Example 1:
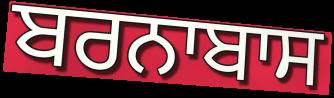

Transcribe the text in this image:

ਬਰਨਾਬਾਸ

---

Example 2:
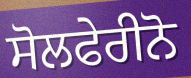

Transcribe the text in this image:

ਸੋਲਫੇਰੀਨੋ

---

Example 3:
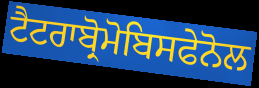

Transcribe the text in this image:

ਟੈਟਰਾਬ੍ਰੋਮੋਬਿਸਫੇਨੋਲ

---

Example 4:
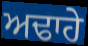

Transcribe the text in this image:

ਅਢਾਹੇ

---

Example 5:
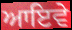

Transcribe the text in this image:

ਆਇਵੇ